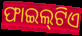
ଫାଇଲ୍‌ଟିଏ